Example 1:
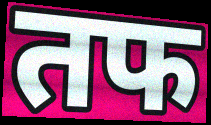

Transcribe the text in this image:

तफ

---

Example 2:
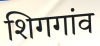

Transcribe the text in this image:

शिगगांव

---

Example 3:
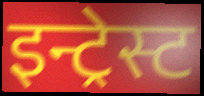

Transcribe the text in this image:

इन्ट्रेस्ट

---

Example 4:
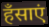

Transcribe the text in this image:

हँसाएं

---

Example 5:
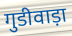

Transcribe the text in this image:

गुडीवाड़ा